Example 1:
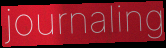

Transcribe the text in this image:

journaling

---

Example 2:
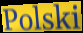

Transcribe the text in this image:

Polski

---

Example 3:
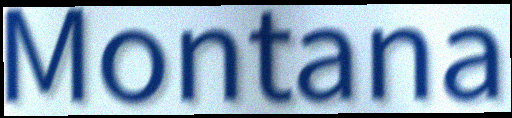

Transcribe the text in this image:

Montana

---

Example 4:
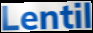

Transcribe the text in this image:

Lentil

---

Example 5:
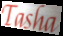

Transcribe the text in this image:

Tasha